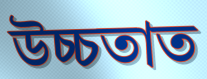
উচ্চতাত